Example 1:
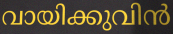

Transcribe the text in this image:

വായിക്കുവിൻ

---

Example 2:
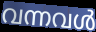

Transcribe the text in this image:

വന്നവൾ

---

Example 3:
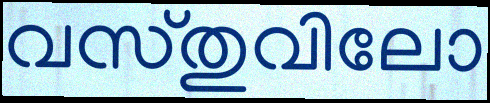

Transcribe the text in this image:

വസ്തുവിലോ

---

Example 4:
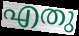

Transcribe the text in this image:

എതു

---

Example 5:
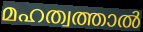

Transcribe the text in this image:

മഹത്വത്താൽ